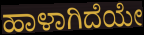
ಹಾಳಾಗಿದೆಯೇ